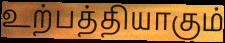
உற்பத்தியாகும்